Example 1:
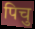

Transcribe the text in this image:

पिचु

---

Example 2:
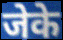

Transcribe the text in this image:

जेके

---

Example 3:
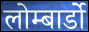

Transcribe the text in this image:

लोम्बार्डो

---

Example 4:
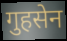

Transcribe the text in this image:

गुहसेन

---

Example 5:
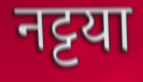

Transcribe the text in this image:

नट्टया